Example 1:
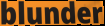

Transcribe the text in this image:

blunder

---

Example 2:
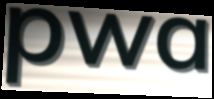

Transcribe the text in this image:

pwa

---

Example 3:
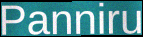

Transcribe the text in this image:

Panniru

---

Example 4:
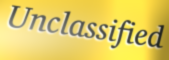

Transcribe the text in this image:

Unclassified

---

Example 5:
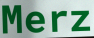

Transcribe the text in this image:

Merz